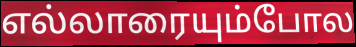
எல்லாரையும்போல